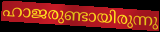
ഹാജരുണ്ടായിരുന്നു